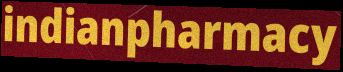
indianpharmacy